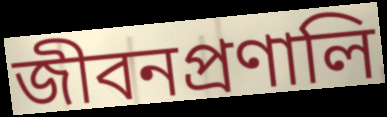
জীবনপ্রণালি